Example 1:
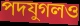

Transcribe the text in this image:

পদযুগলও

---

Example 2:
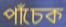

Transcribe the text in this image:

পাঁচেক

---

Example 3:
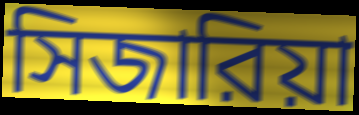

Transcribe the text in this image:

সিজারিয়া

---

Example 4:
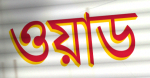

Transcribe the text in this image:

ওয়াড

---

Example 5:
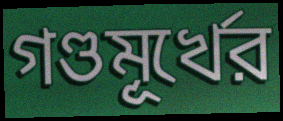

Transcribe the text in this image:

গণ্ডমূর্খের